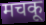
मचकू